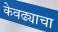
केवढ्याचा